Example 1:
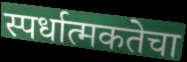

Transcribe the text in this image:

स्पर्धात्मकतेचा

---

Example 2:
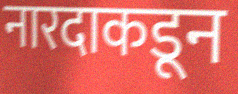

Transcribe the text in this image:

नारदाकडून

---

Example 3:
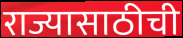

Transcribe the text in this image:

राज्यासाठीची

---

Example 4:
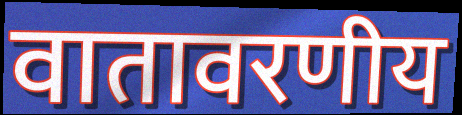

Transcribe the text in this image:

वातावरणीय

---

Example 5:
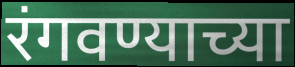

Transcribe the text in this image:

रंगवण्याच्या